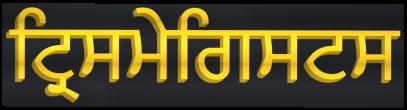
ਟ੍ਰਿਸਮੇਗਿਸਟਸ